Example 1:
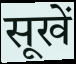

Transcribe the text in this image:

सूखें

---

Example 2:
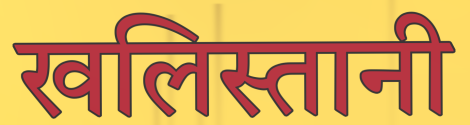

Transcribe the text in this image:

खलिस्तानी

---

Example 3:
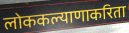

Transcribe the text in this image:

लोककल्याणाकरिता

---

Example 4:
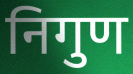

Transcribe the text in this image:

निगुण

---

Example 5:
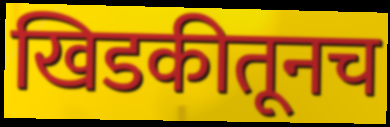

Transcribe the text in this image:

खिडकीतूनच